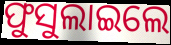
ଫୁସୁଲାଇଲେ